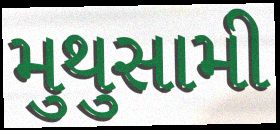
મુથુસામી